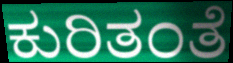
ಕುರಿತಂತೆ